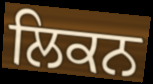
ਲਿਕਨ